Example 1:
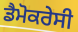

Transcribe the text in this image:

ਡੈਮੋਕਰੇਸੀ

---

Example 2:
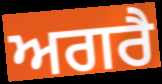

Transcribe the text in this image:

ਅਗਰੈ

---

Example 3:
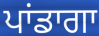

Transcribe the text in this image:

ਪਾਂਡਾਗਾ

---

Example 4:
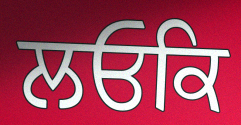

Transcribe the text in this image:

ਲਓਕਿ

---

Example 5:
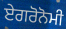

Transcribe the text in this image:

ਏਗਰੋਨੋਮੀ